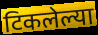
टिकलेल्या